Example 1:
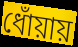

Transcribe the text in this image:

ধোঁয়ায়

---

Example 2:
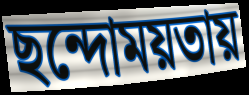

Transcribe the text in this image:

ছন্দোময়তায়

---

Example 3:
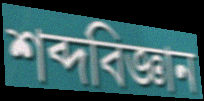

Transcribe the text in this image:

শব্দবিজ্ঞান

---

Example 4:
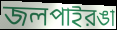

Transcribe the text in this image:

জলপাইরঙা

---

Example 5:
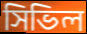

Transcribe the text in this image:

সিভিল